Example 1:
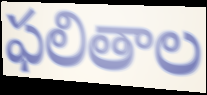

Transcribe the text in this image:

ఫలితాల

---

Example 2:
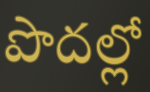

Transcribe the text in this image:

పొదల్లో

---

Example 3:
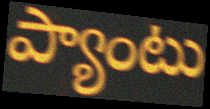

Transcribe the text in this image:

ప్యాంటు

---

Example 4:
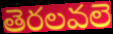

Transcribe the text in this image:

తెరలవలె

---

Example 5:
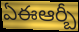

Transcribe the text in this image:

ఏఈఆర్బీ